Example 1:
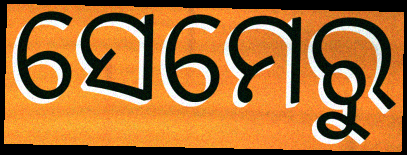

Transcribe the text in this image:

ସେମେରୁ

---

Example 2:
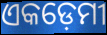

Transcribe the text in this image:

ଏକଡ଼େମୀ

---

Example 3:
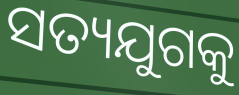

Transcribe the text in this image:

ସତ୍ୟଯୁଗକୁ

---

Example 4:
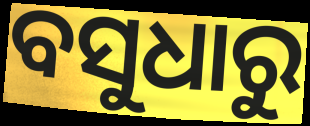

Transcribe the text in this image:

ବସୁଧାରୁ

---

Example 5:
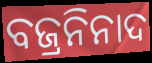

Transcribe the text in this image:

ବଜ୍ରନିନାଦ